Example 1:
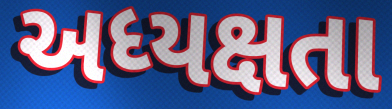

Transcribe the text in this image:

અધ્યક્ષતા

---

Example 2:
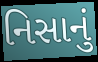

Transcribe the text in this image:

નિસાનું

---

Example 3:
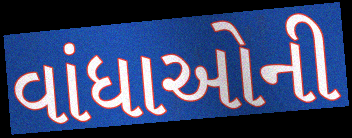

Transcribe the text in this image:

વાંધાઓની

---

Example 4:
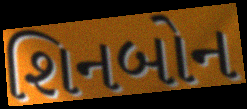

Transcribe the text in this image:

શિનબોન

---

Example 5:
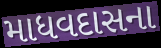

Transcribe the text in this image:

માધવદાસના